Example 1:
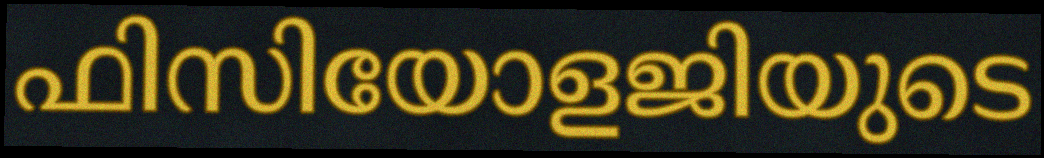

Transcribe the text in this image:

ഫിസിയോളജിയുടെ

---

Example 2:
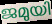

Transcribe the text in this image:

ജമുയി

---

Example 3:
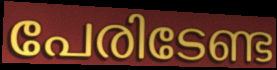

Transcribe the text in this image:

പേരിടേണ്ട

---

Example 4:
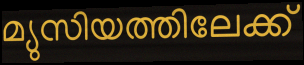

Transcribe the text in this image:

മ്യുസിയത്തിലേക്ക്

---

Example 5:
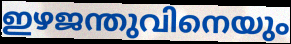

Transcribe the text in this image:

ഇഴജന്തുവിനെയും